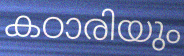
കഠാരിയും